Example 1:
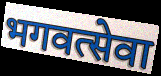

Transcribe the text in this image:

भगवत्सेवा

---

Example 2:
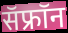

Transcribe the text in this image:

सॅफ्रॉन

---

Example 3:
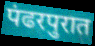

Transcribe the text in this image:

पंढरपुरात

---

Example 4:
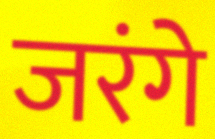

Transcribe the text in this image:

जरंगे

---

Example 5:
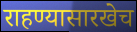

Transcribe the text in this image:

राहण्यासारखेच